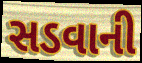
સડવાની